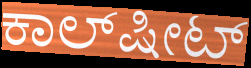
ಕಾಲ್‌ಷೀಟ್